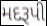
મદરૂપી